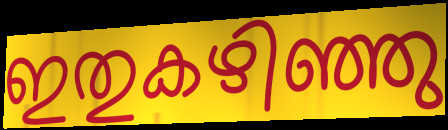
ഇതുകഴിഞ്ഞു